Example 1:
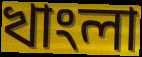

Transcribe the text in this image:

খাংলা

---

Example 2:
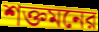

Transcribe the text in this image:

শক্তমনের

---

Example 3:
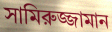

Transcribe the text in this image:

সামিরুজ্জামান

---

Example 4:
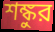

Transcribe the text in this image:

শঙ্কুর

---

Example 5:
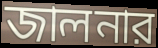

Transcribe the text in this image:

জালনার